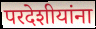
परदेशीयांना